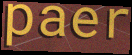
paer